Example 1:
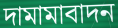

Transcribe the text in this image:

দামামাবাদন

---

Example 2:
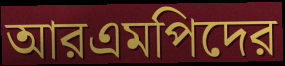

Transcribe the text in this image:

আরএমপিদের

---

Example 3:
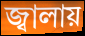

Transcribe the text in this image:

জ্বালায়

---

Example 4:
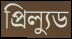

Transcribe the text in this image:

প্রিল্যুড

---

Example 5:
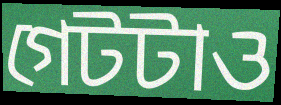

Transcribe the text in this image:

গেটটাও